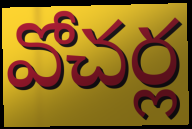
వోచర్ల